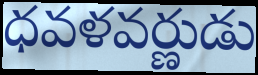
ధవళవర్ణుడు